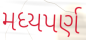
મધ્યપર્ણ